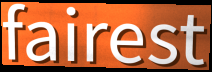
fairest